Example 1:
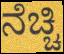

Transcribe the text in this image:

ನೆಚ್ಚಿ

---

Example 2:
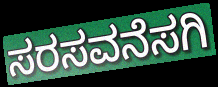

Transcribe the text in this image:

ಸರಸವನೆಸಗಿ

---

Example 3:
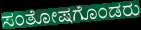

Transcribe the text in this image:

ಸಂತೋಷಗೊಂಡರು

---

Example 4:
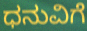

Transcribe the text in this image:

ಧನುವಿಗೆ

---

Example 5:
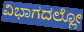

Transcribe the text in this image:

ವಿಭಾಗದಲ್ಲೋ